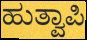
ಹುತ್ವಾಪಿ